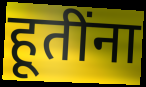
हूतींना